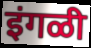
इंगळी